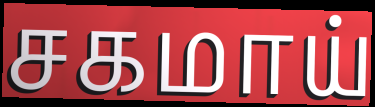
சகமாய்